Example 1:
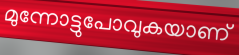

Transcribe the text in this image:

മുന്നോട്ടുപോവുകയാണ്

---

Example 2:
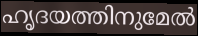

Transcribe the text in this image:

ഹൃദയത്തിനുമേൽ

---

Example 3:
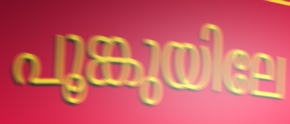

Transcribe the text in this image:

പൂങ്കുയിലേ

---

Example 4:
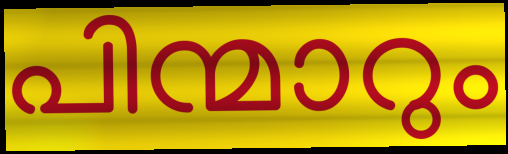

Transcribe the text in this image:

പിന്മാറും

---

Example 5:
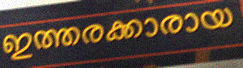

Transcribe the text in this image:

ഇത്തരക്കാരായ